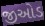
જીઓડ